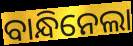
ବାନ୍ଧିନେଲା